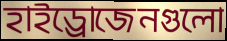
হাইড্রোজেনগুলো